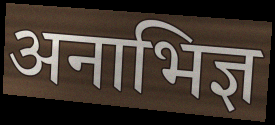
अनाभिज्ञ